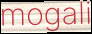
mogali